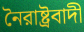
নৈরাষ্ট্রবাদী